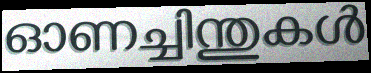
ഓണച്ചിന്തുകൾ